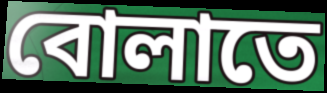
বোলাতে